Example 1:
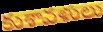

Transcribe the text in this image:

కుశావళులు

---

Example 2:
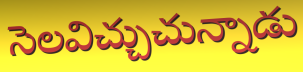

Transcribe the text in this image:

సెలవిచ్చుచున్నాడు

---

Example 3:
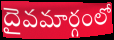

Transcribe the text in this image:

దైవమార్గంలో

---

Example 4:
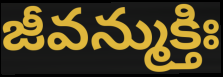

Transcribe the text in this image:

జీవన్ముక్తిః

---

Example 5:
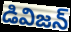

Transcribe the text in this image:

డివిజన్